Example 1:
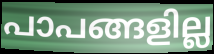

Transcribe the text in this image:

പാപങ്ങളില്ല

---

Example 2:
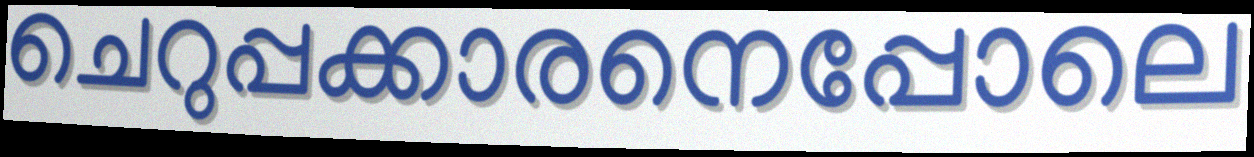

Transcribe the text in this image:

ചെറുപ്പക്കാരനെപ്പോലെ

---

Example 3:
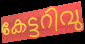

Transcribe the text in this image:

കേട്ടറിവു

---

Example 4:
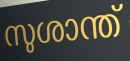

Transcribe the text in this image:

സുശാന്ത്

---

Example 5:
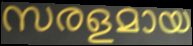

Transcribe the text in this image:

സരളമായ